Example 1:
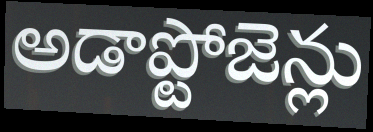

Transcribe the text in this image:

అడాప్టోజెన్లు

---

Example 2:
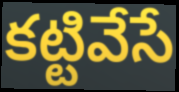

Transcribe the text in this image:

కట్టివేసే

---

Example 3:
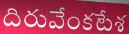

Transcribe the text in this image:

దిరువేంకటేశ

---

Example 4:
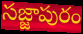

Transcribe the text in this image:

సజ్జాపురం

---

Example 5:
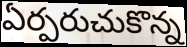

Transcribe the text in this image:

ఏర్పరుచుకొన్న